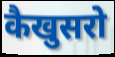
कैखुसरो